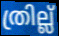
ത്രില്ല്